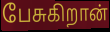
பேசுகிறான்